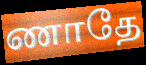
ணாதே